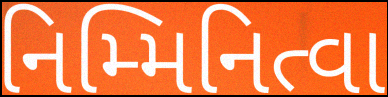
નિમ્મિનિત્વા